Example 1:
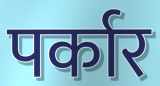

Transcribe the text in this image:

पर्कार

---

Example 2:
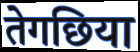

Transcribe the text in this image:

तेगछिया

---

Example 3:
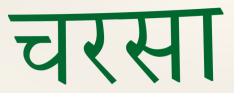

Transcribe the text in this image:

चरसा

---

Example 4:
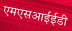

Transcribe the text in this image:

एमएसआईईडी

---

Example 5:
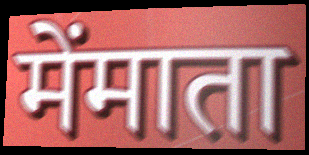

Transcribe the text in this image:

मेंमाता